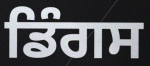
ਡਿੰਗਸ